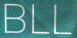
BLL